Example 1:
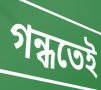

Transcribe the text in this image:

গন্ধতেই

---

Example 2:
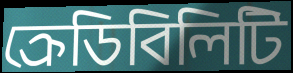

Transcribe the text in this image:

ক্রেডিবিলিটি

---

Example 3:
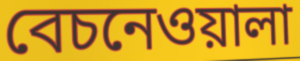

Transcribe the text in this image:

বেচনেওয়ালা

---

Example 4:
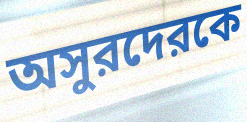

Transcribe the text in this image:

অসুরদেরকে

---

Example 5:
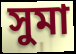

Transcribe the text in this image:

সুমা